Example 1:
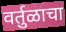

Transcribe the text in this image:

वर्तुळाचा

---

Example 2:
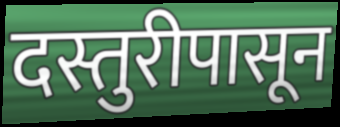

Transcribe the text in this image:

दस्तुरीपासून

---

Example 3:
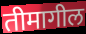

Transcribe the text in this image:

तीमागील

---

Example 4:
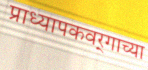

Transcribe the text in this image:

प्राध्यापकवर्गाच्या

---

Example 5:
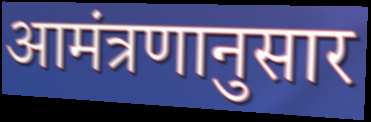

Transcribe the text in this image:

आमंत्रणानुसार